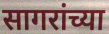
सागरांच्या